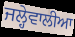
ਜਲ੍ਹੇਵਾਲੀਆ